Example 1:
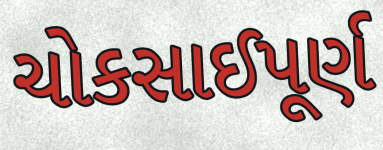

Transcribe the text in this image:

ચોકસાઈપૂર્ણ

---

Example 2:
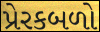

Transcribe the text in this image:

પ્રેરકબળો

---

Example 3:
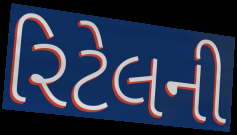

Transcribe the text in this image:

રિટેલની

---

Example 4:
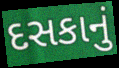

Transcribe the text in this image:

દસકાનું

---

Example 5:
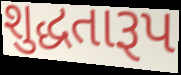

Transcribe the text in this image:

શુદ્ધતારૂપ